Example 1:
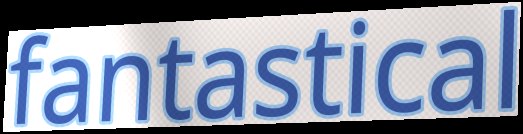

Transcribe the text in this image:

fantastical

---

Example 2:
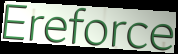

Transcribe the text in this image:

Ereforce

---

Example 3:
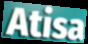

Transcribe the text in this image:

Atisa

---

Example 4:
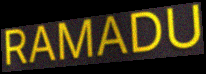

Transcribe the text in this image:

RAMADU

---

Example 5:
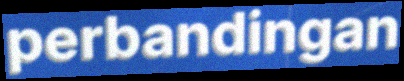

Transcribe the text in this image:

perbandingan